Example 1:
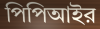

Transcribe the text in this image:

পিপিআইর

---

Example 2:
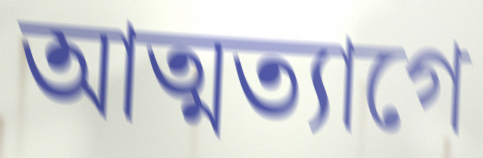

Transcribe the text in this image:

আত্মত্যাগে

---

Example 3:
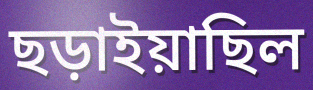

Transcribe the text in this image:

ছড়াইয়াছিল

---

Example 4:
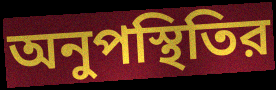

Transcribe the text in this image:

অনুপস্থিতির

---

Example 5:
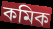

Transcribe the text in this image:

কমিক